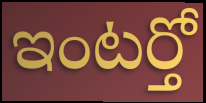
ఇంటర్తో